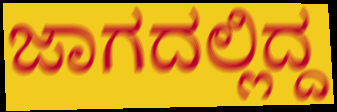
ಜಾಗದಲ್ಲಿದ್ದ